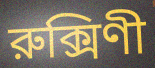
রুক্সিণী